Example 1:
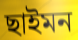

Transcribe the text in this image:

ছাইমন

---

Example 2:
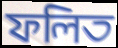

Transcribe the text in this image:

ফলিত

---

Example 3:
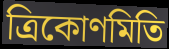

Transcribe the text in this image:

ত্ৰিকোণমিতি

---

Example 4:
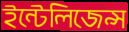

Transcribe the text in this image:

ইন্টেলিজেন্স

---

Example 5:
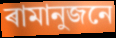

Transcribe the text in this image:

ৰামানুজনে